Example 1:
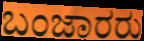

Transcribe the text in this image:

ಬಂಜಾರರು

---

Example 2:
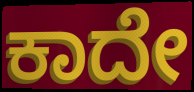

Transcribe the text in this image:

ಕಾದೇ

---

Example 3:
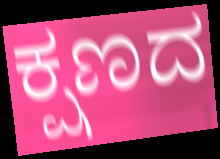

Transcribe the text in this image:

ಕ್ಷಣದ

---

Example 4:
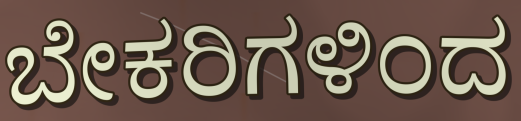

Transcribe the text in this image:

ಬೇಕರಿಗಳಿಂದ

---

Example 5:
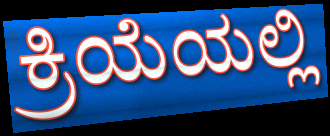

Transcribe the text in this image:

ಕ್ರಿಯೆಯಲ್ಲಿ